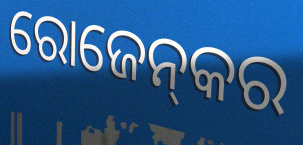
ରୋଜେନ୍‌କର